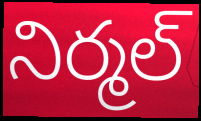
నిర్మల్